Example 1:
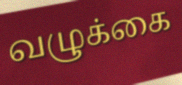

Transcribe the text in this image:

வழுக்கை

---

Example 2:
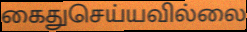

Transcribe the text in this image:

கைதுசெய்யவில்லை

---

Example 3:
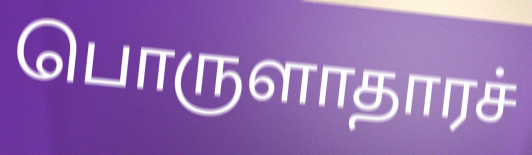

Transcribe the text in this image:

பொருளாதாரச்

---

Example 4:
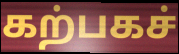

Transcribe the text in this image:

கற்பகச்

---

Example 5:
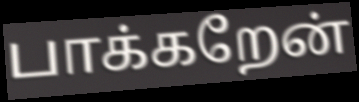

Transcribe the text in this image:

பாக்கறேன்